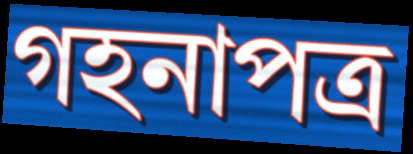
গহনাপত্র